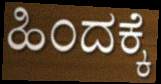
ಹಿಂದಕ್ಕೆ